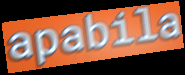
apabila